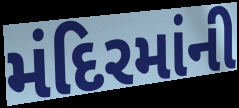
મંદિરમાંની